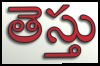
తెస్తు